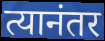
त्यानंतर